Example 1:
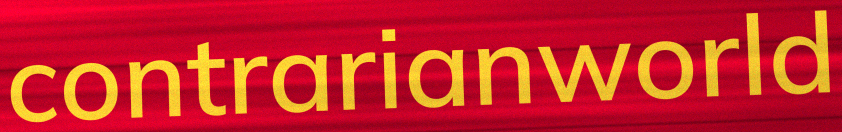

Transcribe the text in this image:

contrarianworld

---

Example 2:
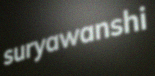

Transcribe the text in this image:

suryawanshi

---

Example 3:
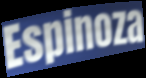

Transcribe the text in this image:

Espinoza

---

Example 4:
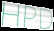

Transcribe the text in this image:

HPD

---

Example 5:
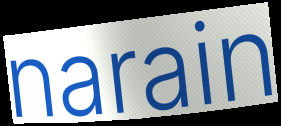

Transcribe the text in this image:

narain